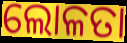
ଲୋଳତା